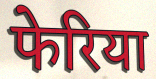
फेरिया